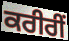
ਕਰੀਰੀਂ